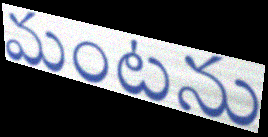
మంటను